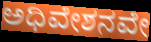
ಅಧಿವೇಶನವೇ